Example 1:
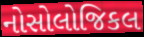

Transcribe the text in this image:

નોસોલોજિકલ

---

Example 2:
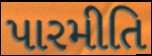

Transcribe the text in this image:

પારમીતિ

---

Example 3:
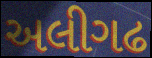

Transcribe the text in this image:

અલીગઢ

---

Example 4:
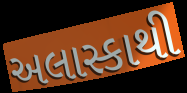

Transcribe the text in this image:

અલાસ્કાથી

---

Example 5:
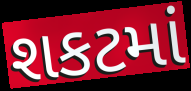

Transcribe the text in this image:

શકટમાં